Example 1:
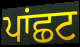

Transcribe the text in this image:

ਪਾਂਛਟ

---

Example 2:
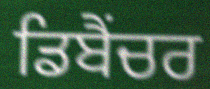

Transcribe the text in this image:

ਡਿਬੈਂਚਰ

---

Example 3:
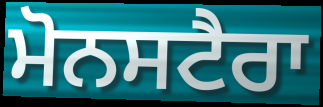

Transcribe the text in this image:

ਮੋਨਸਟੈਰਾ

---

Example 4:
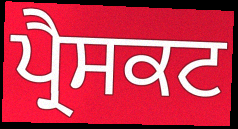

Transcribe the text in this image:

ਪ੍ਰੈਸਕਟ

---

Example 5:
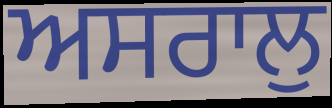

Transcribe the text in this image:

ਅਸਰਾਲੁ